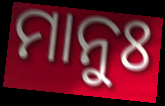
ମାନୁଃ